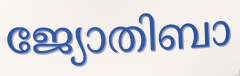
ജ്യോതിബാ